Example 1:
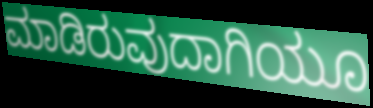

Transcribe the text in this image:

ಮಾಡಿರುವುದಾಗಿಯೂ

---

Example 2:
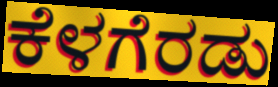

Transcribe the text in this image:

ಕೆಳಗೆರಡು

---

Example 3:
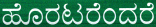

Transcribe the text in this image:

ಹೊರಟರೆಂದರೆ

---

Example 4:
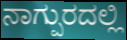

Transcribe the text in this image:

ನಾಗ್ಪುರದಲ್ಲಿ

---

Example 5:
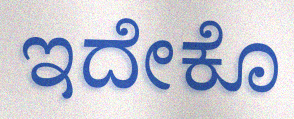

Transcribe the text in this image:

ಇದೇಕೊ